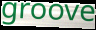
groove